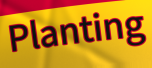
Planting